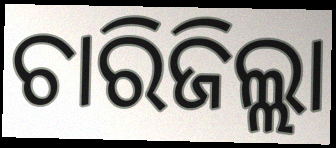
ଚାରିଜିଲ୍ଲା